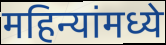
महिन्यांमध्ये